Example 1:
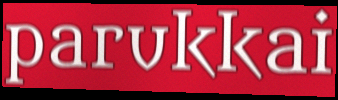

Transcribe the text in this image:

parukkai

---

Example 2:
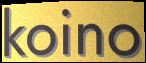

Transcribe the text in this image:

koino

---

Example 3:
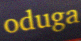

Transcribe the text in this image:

oduga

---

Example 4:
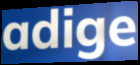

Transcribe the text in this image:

adige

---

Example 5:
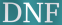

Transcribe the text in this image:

DNF